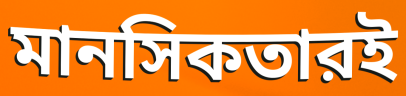
মানসিকতারই